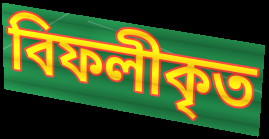
বিফলীকৃত